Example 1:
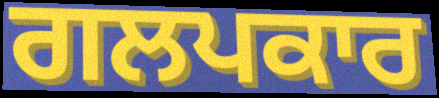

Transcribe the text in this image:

ਗਲਪਕਾਰ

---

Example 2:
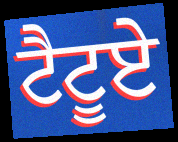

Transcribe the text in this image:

ਟੈਟੂਏ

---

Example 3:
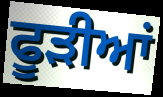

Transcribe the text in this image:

ਫੂੜੀਆਂ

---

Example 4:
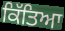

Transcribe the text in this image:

ਕਿੱਤਿਆ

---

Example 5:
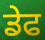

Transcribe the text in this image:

ਡੇਫ